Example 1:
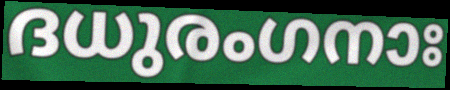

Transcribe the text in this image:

ദധുരംഗനാഃ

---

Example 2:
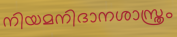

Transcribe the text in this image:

നിയമനിദാനശാസ്ത്രം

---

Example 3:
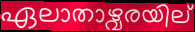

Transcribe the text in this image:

ഏലാതാഴ്വരയില്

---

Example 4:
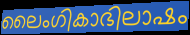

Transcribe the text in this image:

ലൈംഗികാഭിലാഷം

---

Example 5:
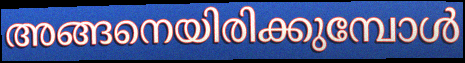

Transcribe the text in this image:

അങ്ങനെയിരിക്കുമ്പോൾ